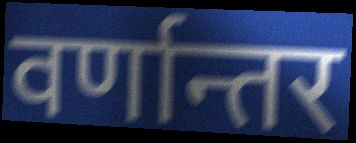
वर्णान्तर